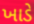
ખાડે